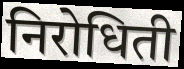
निरोधिती